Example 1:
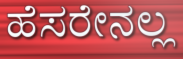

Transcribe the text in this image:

ಹೆಸರೇನಲ್ಲ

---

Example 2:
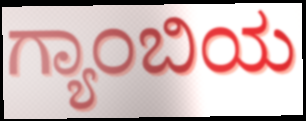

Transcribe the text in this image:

ಗ್ಯಾಂಬಿಯ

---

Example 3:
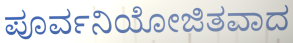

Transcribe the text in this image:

ಪೂರ್ವನಿಯೋಜಿತವಾದ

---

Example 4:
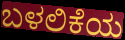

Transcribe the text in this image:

ಬಳಲಿಕೆಯ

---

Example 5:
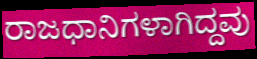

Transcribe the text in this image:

ರಾಜಧಾನಿಗಳಾಗಿದ್ದವು